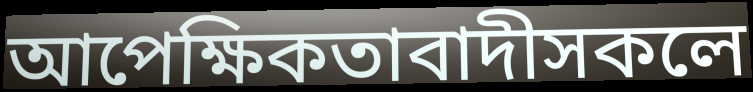
আপেক্ষিকতাবাদীসকলে